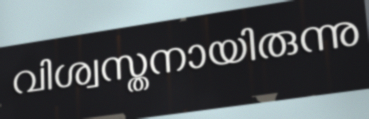
വിശ്വസ്തനായിരുന്നു